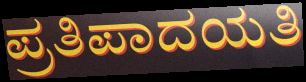
ಪ್ರತಿಪಾದಯತಿ